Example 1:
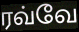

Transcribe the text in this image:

ரவ்வே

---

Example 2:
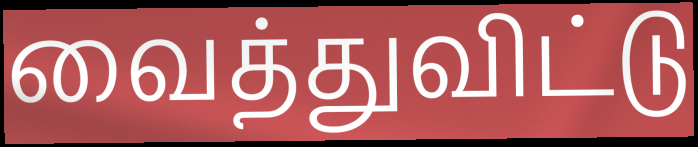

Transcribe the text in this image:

வைத்துவிட்டு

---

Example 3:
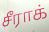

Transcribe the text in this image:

சீராக்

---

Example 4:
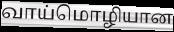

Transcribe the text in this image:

வாய்மொழியான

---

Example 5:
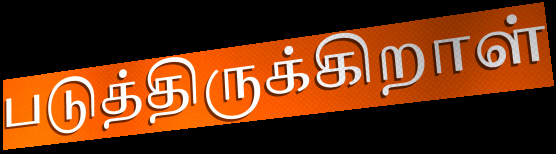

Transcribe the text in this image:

படுத்திருக்கிறாள்